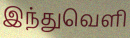
இந்துவெளி